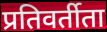
प्रतिवर्तीता